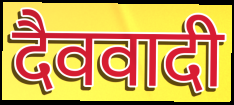
दैववादी